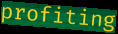
profiting